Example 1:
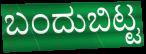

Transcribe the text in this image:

ಬಂದುಬಿಟ್ಟ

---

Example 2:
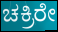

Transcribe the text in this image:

ಚಕ್ರಿರೇ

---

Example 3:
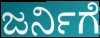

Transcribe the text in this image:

ಜರ್ನಿಗೆ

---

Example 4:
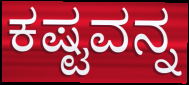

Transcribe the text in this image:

ಕಷ್ಟವನ್ನ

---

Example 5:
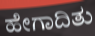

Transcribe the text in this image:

ಹೇಗಾದಿತು